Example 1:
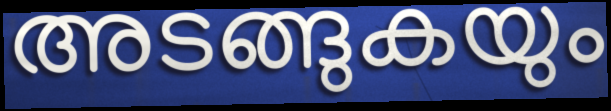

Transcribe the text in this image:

അടങ്ങുകയും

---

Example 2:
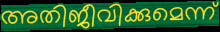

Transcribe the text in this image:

അതിജീവിക്കുമെന്ന്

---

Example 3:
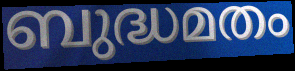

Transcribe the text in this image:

ബുദ്ധമതം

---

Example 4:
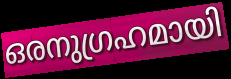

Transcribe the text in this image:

ഒരനുഗ്രഹമായി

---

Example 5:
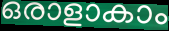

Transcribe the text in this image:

ഒരാളാകാം